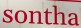
sontha